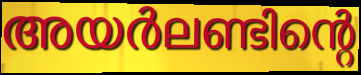
അയർലണ്ടിന്റെ